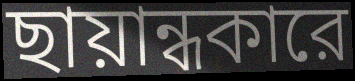
ছায়ান্ধকারে